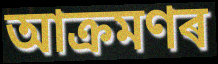
আক্ৰমণৰ